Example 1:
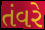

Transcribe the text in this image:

તંવરે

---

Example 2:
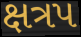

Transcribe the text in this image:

ક્ષત્રપ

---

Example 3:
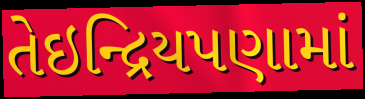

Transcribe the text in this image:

તેઇન્દ્રિયપણામાં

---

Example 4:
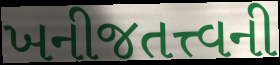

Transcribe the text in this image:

ખનીજતત્ત્વની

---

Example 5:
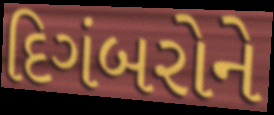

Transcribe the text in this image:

દિગંબરોને